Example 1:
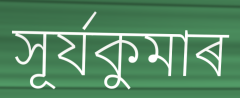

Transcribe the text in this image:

সূৰ্যকুমাৰ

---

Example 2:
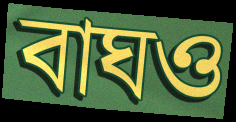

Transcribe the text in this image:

বাঘও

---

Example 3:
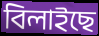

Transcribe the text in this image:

বিলাইছে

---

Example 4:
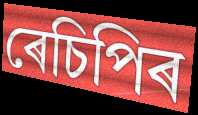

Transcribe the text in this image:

ৰেচিপিৰ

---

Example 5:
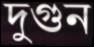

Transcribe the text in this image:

দুগুন